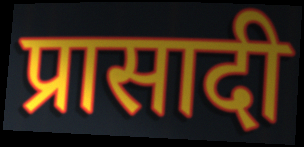
प्रासादी